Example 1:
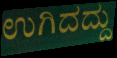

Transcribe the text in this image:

ಉಗಿದದ್ದು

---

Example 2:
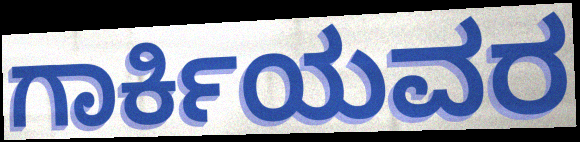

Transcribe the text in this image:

ಗಾರ್ಕಿಯವರ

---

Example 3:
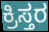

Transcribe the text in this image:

ಕ್ರಿಸ್ತರ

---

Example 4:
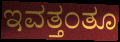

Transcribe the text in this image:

ಇವತ್ತಂತೂ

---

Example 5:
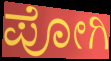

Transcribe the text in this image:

ಪೋಗಿ